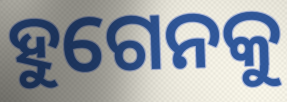
ହୁଗେନକୁ